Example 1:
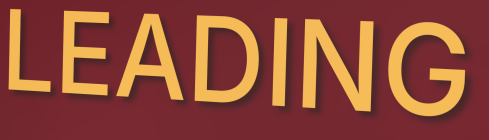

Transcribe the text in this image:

LEADING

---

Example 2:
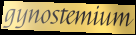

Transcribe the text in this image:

gynostemium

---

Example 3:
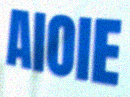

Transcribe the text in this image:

AIOIE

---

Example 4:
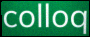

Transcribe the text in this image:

colloq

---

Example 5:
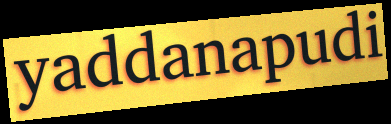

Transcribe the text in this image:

yaddanapudi